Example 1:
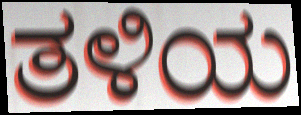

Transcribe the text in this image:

ತಳಿಯ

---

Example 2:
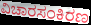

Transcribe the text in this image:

ವಿಚಾರಸಂಕಿರಣ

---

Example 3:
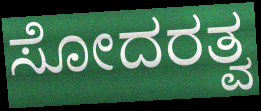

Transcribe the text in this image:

ಸೋದರತ್ವ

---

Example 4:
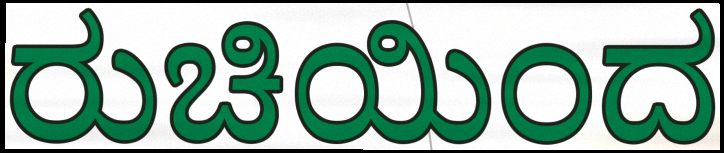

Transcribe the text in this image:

ರುಚಿಯಿಂದ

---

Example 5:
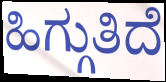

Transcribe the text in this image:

ಹಿಗ್ಗುತಿದೆ